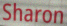
Sharon